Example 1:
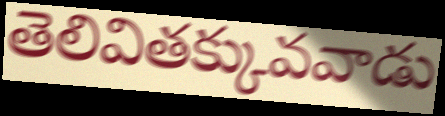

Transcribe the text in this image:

తెలివితక్కువవాడు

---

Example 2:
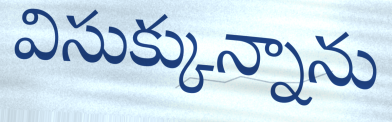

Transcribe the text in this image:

విసుక్కున్నాను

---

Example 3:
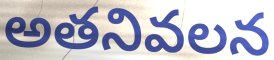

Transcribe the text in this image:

అతనివలన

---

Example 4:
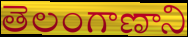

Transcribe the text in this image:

తెలంగాణాని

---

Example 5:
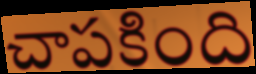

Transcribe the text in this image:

చాపకింది